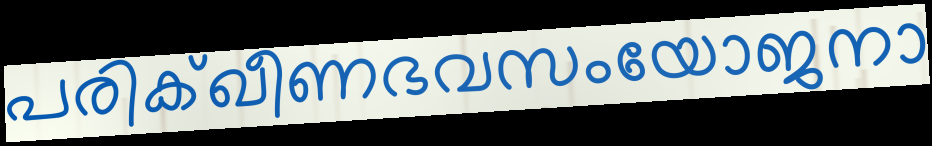
പരിക്ഖീണഭവസംയോജനാ